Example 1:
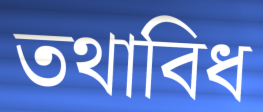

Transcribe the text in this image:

তথাবিধ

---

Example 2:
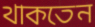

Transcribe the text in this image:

থাকতেন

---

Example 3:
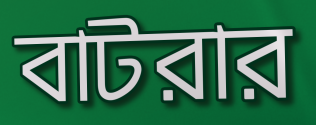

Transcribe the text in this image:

বাটরার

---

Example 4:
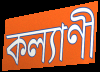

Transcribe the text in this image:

কল্যাণী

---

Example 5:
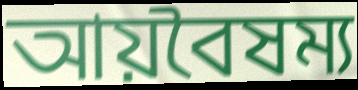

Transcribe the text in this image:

আয়বৈষম্য